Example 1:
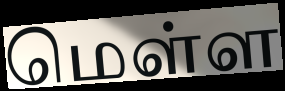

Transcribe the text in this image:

மெள்ள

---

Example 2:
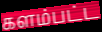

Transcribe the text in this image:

களம்பட்ட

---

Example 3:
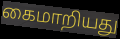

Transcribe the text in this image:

கைமாறியது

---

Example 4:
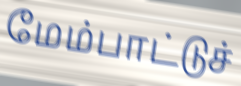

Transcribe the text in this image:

மேம்பாட்டுச்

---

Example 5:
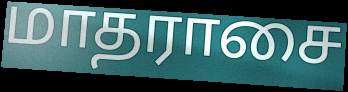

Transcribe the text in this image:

மாதராசை